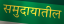
समुदायातील